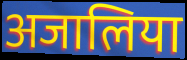
अजालिया